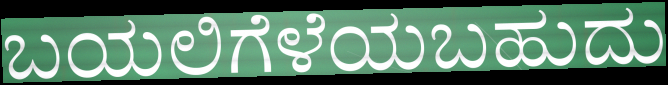
ಬಯಲಿಗೆಳೆಯಬಹುದು